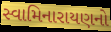
સ્વામિનારાયણનો